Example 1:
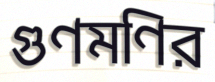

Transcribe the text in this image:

গুণমণির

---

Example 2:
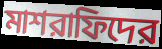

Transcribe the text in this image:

মাশরাফিদের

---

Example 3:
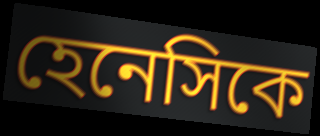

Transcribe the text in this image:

হেনেসিকে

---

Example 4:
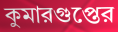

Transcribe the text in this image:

কুমারগুপ্তের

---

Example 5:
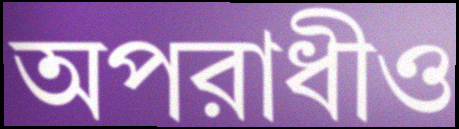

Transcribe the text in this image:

অপরাধীও